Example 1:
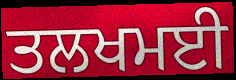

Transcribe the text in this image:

ਤਲਖਮਈ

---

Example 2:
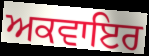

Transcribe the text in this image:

ਅਕਵਾਇਰ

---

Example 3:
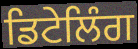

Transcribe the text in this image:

ਡਿਟੇਲਿੰਗ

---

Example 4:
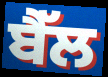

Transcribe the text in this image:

ਬੈੱਲ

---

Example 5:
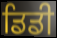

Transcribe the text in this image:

ਡਿਡੀ